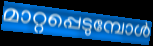
മാറ്റപ്പെടുമ്പോൾ